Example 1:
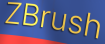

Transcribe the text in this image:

ZBrush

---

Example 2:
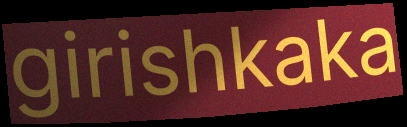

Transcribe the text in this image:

girishkaka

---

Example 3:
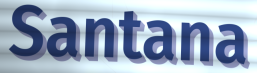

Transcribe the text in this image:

Santana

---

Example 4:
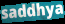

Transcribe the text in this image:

saddhya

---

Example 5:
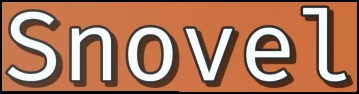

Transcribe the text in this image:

Snovel